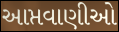
આપ્તવાણીઓ